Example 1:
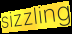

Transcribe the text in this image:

sizzling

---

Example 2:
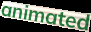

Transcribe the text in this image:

animated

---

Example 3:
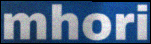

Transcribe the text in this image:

mhori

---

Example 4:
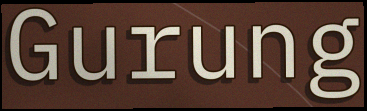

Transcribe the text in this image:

Gurung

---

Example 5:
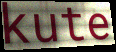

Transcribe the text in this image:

kute